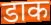
डाक